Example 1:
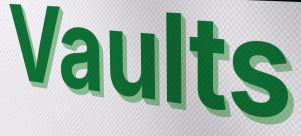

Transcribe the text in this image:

Vaults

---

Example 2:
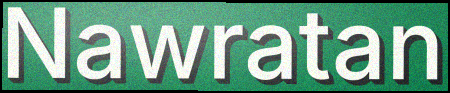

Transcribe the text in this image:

Nawratan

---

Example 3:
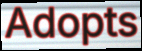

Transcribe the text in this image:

Adopts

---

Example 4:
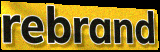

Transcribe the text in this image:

rebrand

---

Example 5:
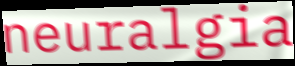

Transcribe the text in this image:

neuralgia